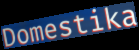
Domestika